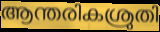
ആന്തരികശ്രുതി